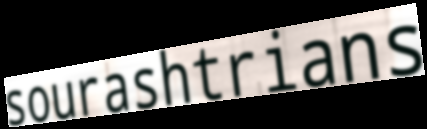
sourashtrians